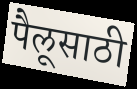
पैलूसाठी